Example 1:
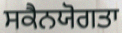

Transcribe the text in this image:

ਸਕੈਨਯੋਗਤਾ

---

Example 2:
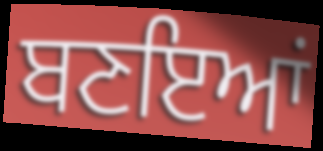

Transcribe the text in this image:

ਬਣਇਆਂ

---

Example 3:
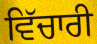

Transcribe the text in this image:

ਵਿੱਚਾਰੀ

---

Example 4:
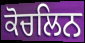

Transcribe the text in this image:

ਕੋਚਲਿਨ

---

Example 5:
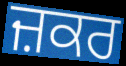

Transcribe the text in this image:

ਜ਼ਕਰ